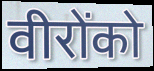
वीरोंको